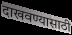
दाखवण्यासाठी